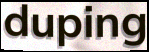
duping